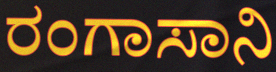
ರಂಗಾಸಾನಿ